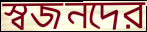
স্বজনদের